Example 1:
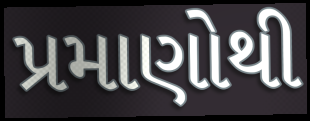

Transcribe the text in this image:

પ્રમાણોથી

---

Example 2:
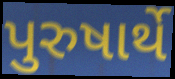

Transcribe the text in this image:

પુરુષાર્થે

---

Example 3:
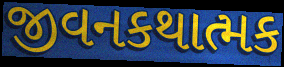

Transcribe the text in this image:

જીવનકથાત્મક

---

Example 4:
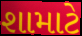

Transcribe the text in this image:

શામાટે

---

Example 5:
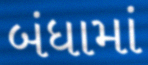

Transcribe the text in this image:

બંધામાં